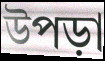
উপড়া